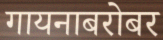
गायनाबरोबर